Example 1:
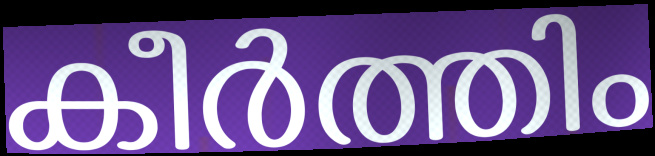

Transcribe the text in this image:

കീർത്തിം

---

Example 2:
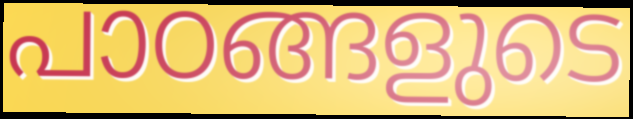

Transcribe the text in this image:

പാഠങ്ങളുടെ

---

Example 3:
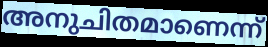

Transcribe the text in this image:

അനുചിതമാണെന്ന്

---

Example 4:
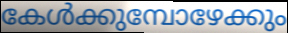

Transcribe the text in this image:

കേൾക്കുമ്പോഴേക്കും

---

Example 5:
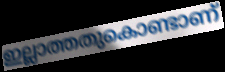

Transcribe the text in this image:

ഇല്ലാത്തതുകൊണ്ടാണ്